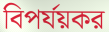
বিপর্যয়কর